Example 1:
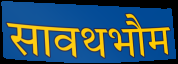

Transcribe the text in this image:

सावथभौम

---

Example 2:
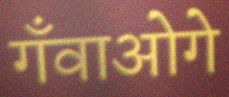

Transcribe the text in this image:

गँवाओगे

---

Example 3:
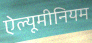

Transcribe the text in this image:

ऐल्यूमीनियम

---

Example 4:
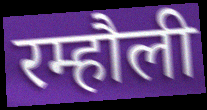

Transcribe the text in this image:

रम्हौली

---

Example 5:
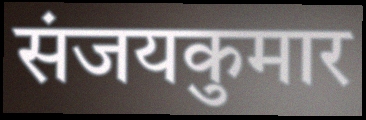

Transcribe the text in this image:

संजयकुमार